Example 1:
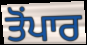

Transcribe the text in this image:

ਤੋਂਪਾਰ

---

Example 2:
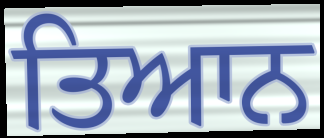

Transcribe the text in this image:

ਤਿਆਨ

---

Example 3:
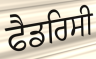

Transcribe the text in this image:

ਫੈਡਰਿਸੀ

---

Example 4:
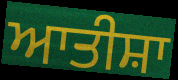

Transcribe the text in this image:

ਆਤੀਸ਼ਾ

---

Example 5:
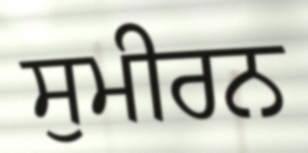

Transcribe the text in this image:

ਸੁਮੀਰਨ